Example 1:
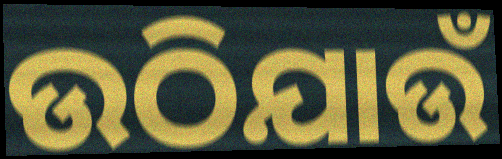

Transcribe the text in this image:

ଉଠିଯାଉଁ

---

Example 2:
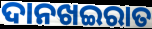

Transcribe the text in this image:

ଦାନଖଇରାତ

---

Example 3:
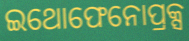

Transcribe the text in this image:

ଇଥୋଫେନୋପ୍ରକ୍ସ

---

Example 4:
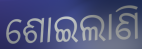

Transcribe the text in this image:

ଶୋଇଲାଣି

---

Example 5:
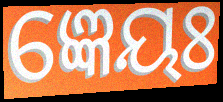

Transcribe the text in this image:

ଜ୍ଞେୟଃ